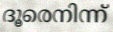
ദൂരെനിന്ന്